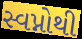
સ્વપ્નોથી